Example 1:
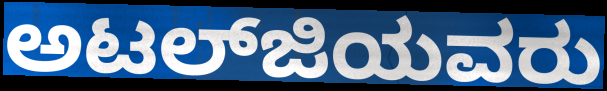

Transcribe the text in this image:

ಅಟಲ್‍ಜಿಯವರು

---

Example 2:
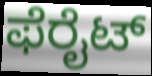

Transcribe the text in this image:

ಫೆರೈಟ್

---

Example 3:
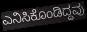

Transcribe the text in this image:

ಎನಿಸಿಕೊಂಡಿದ್ದವು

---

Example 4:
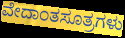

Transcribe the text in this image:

ವೇದಾಂತಸೂತ್ರಗಳು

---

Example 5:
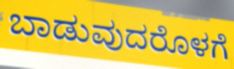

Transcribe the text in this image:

ಬಾಡುವುದರೊಳಗೆ